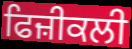
ਫਿਜ਼ੀਕਲੀ